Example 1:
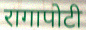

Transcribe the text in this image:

रागापोटी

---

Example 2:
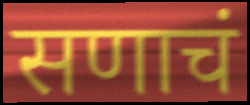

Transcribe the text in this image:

सणाचं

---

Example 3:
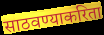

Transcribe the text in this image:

साठवण्याकरिता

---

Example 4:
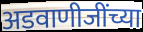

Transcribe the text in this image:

अडवाणीजींच्या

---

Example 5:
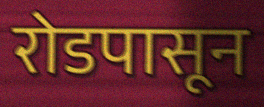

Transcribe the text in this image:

रोडपासून